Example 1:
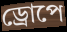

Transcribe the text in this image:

ড্ৰোপে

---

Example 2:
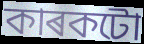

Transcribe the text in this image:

কাৰকটো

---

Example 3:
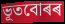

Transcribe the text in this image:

ভূতবোৰৰ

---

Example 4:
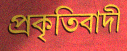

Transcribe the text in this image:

প্ৰকৃতিবাদী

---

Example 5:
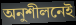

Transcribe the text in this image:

অনুশীলনেই